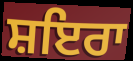
ਸ਼ਇਰਾ